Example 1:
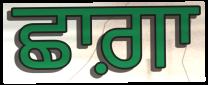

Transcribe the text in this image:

ਛਾਗ਼ਾ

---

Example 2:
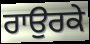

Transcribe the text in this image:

ਰਾਉਰਕੇ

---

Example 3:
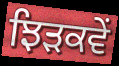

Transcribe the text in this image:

ਝਿੜਕਵੇਂ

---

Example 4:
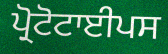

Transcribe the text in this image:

ਪ੍ਰੋਟੋਟਾਈਪਸ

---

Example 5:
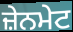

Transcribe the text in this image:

ਜ਼ੇਨਮੇਟ